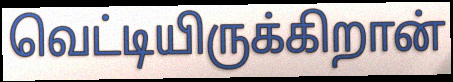
வெட்டியிருக்கிறான்